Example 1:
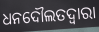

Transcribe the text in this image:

ଧନଦୌଲତଦ୍ଵାରା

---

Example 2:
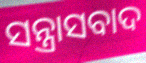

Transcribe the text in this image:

ସନ୍ତ୍ରାସବାଦ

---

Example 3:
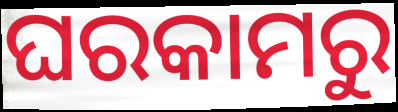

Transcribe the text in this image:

ଘରକାମରୁ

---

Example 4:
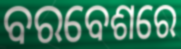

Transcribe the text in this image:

ବରବେଶରେ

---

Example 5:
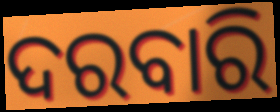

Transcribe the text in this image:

ଦରବାରି